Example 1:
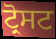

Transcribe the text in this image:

ਟ੍ਰੋਸਟ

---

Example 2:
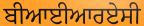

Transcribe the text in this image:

ਬੀਆਈਆਰਏਸੀ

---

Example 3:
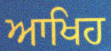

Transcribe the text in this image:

ਆਖਿਹ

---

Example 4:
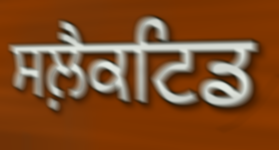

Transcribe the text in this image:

ਸਲ਼ੈਕਟਿਡ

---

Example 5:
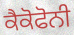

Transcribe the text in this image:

ਕੈਕੋਫੋਨੀ